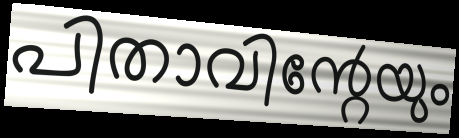
പിതാവിന്റേയും